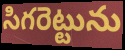
సిగరెట్టును